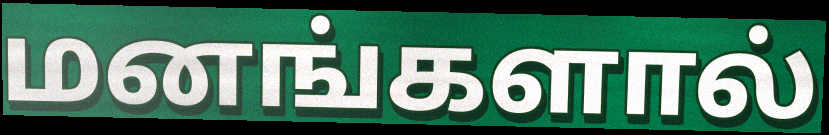
மனங்களால்